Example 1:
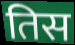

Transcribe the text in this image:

तिस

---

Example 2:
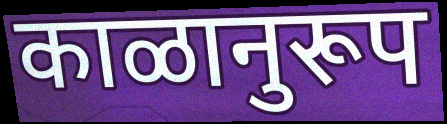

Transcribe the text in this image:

काळानुरूप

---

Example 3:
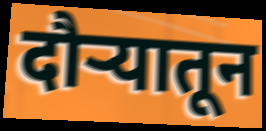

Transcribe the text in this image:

दौऱ्यातून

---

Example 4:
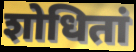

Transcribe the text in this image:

शोधितां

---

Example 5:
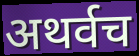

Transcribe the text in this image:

अथर्वच